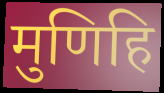
मुणिहि